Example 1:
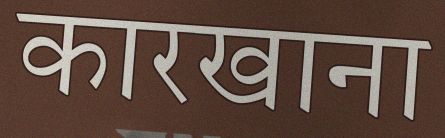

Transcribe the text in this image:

कारखाना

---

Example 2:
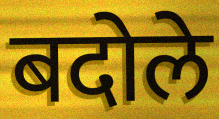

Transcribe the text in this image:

बदोले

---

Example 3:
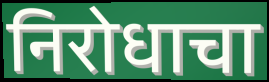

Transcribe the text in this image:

निरोधाचा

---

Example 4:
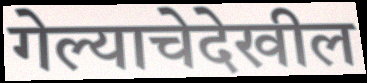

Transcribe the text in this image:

गेल्याचेदेखील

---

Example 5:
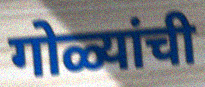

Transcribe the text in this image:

गोळ्यांची